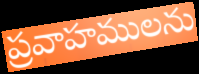
ప్రవాహములను